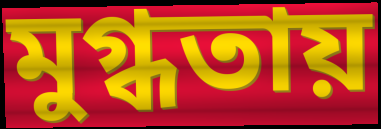
মুগ্ধতায়